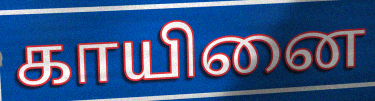
காயினை